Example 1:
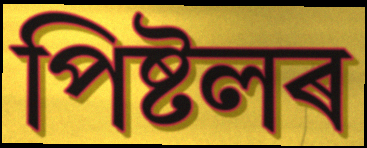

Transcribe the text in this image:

পিষ্টলৰ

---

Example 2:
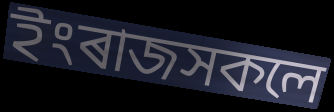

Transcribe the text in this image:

ইংৰাজসকলে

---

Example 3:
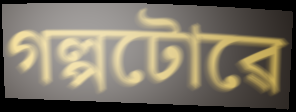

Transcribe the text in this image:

গল্পটোৱে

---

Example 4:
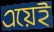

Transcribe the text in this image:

এয়েই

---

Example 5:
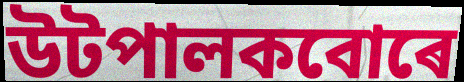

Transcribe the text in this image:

উটপালকবোৰে